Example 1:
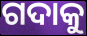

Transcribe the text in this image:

ଗଦାକୁ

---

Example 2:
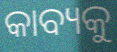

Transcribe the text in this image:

କାବ୍ୟକୁ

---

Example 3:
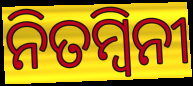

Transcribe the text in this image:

ନିତମ୍ବିନୀ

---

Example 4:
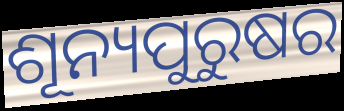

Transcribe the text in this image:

ଶୂନ୍ୟପୁରୁଷର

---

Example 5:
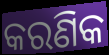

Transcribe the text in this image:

କରଣିକ